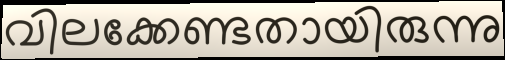
വിലക്കേണ്ടതായിരുന്നു